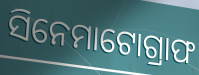
ସିନେମାଟୋଗ୍ରାଫ